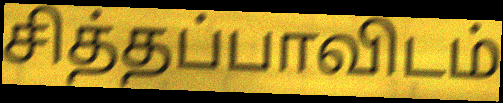
சித்தப்பாவிடம்